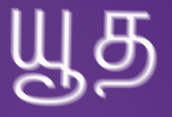
யூத